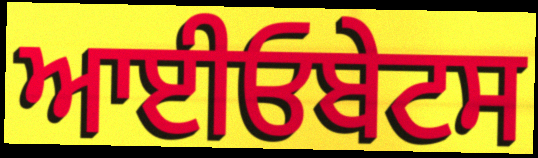
ਆਈਓਬੇਟਸ